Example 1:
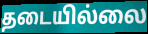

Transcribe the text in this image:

தடையில்லை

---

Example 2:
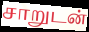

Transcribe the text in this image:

சாறுடன்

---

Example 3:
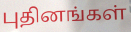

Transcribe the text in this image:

புதினங்கள்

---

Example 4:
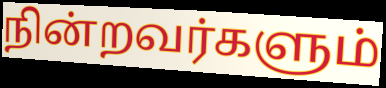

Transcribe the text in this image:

நின்றவர்களும்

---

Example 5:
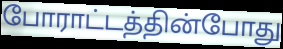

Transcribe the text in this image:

போராட்டத்தின்போது